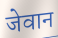
जेवान